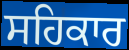
ਸਹਿਕਾਰ